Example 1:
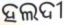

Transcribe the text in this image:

ହଲଦୀ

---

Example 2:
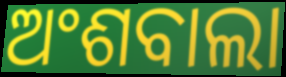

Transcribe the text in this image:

ଅଂଶବାଲା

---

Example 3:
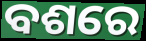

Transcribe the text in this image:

ବଶରେ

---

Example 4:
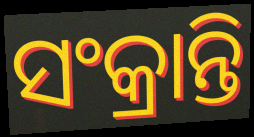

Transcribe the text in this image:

ସଂକ୍ରାନ୍ତି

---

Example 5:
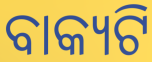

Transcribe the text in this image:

ବାକ୍ୟଟି